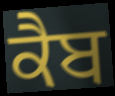
ਕੈਬ